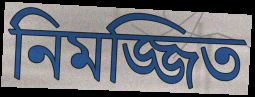
নিমজ্জিত